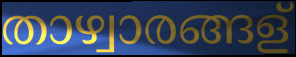
താഴ്വാരങ്ങള്